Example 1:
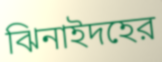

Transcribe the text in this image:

ঝিনাইদহের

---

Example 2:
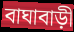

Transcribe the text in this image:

বাঘাবাড়ী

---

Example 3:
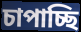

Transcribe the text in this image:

চাপাচ্ছি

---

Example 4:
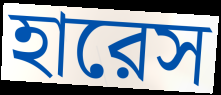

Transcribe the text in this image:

হারেস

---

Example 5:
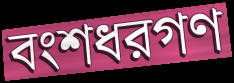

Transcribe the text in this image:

বংশধরগণ